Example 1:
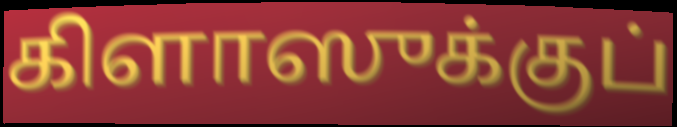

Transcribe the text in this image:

கிளாஸுக்குப்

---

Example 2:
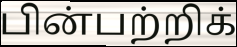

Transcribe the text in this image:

பின்பற்றிக்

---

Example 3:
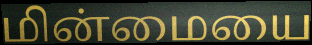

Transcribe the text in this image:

மின்மையை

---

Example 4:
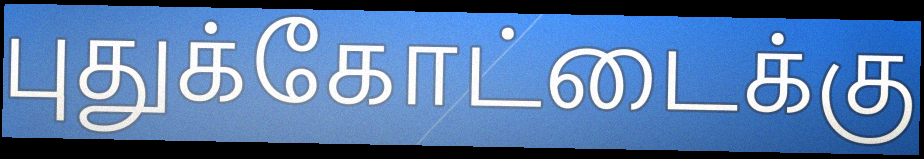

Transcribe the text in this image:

புதுக்கோட்டைக்கு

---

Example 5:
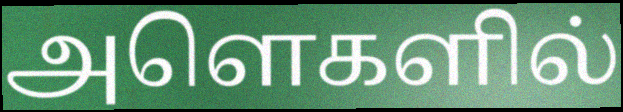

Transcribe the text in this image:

அளெகளில்